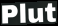
Plut